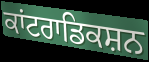
ਕਾਂਟਰਾਡਿਕਸ਼ਨ